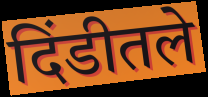
दिंडीतले